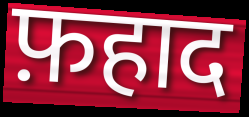
फ़हाद